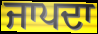
ਜਾਪਦਾ